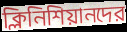
ক্লিনিশিয়ানদের